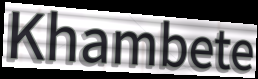
Khambete